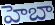
హెబా